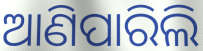
ଆଣିପାରିଲି